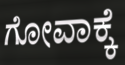
ಗೋವಾಕ್ಕೆ